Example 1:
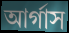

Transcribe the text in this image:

আর্গাস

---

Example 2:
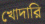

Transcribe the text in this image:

খোদারি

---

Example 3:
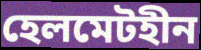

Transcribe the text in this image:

হেলমেটহীন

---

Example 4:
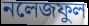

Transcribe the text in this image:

নলেজফুল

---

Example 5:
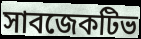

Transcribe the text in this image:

সাবজেকটিভ